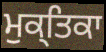
ਮੁਕ੍ਤਿਕਾ